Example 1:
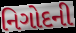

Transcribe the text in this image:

નિગોદની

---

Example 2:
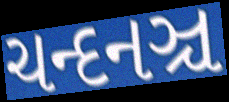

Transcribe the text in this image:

ચન્દનઞ્ચ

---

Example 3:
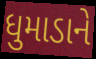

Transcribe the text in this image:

ધુમાડાને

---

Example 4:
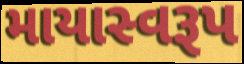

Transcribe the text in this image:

માયાસ્વરૂપ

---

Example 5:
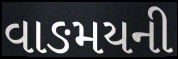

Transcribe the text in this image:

વાઙમયની